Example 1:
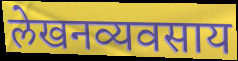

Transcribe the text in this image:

लेखनव्यवसाय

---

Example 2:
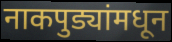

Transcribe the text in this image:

नाकपुड्यांमधून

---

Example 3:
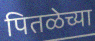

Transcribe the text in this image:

पितळेच्या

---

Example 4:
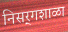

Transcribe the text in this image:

निसर्गशाळा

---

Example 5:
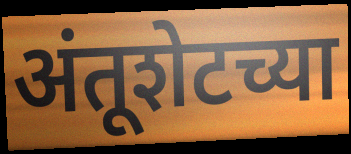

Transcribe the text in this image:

अंतूशेटच्या